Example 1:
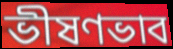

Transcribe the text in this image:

ভীষণভাব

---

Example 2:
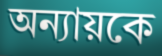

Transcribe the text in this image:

অন্যায়কে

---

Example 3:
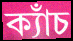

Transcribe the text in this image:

ক্যাঁচ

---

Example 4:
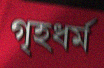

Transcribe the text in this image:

গৃহধর্ম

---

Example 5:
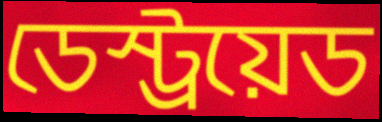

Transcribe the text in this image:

ডেস্ট্রয়েড